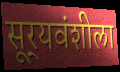
सूर्यवंशीला